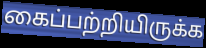
கைப்பற்றியிருக்க